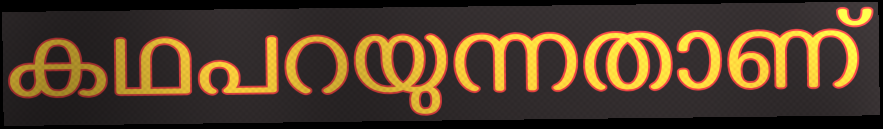
കഥപറയുന്നതാണ്